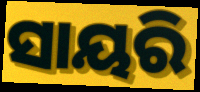
ସାୟରି